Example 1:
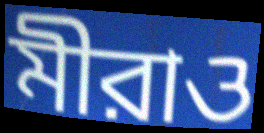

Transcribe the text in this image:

মীরাও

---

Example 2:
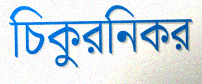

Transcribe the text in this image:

চিকুরনিকর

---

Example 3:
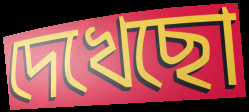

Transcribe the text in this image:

দেখেছো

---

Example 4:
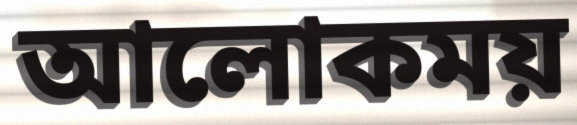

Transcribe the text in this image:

আলোকময়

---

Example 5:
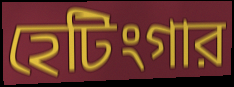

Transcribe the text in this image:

হেটিংগার